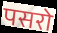
पसरो